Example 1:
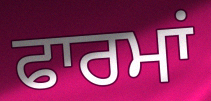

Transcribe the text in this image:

ਫਾਰਮਾਂ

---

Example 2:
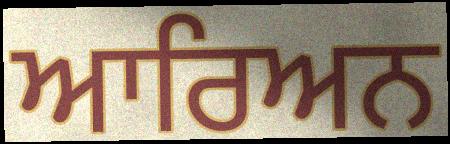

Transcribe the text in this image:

ਆਰਿਅਨ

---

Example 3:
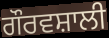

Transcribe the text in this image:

ਗੌਰਵਸ਼ਾਲੀ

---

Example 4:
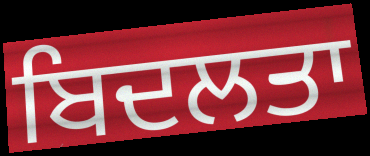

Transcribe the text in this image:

ਬਿਦਲਤਾ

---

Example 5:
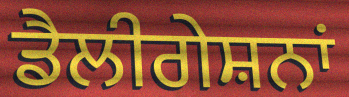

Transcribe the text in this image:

ਡੈਲੀਗੇਸ਼ਨਾਂ